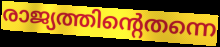
രാജ്യത്തിന്റെതന്നെ